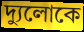
দ্যুলোকে